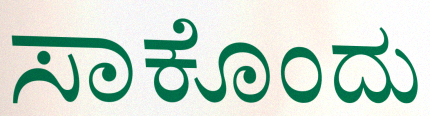
ಸಾಕೊಂದು